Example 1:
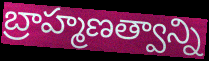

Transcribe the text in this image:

బ్రాహ్మణత్వాన్ని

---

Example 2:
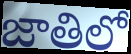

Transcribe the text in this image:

జాతిలో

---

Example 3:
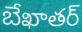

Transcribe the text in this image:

బేఖాతర్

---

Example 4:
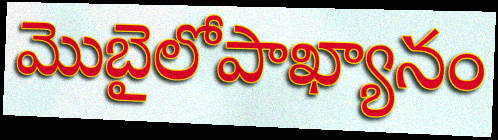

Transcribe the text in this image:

మొబైలోపాఖ్యానం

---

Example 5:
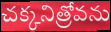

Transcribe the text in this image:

చక్కనిత్రోవను